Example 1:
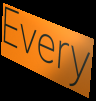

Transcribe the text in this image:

Every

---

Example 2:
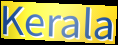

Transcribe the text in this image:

Kerala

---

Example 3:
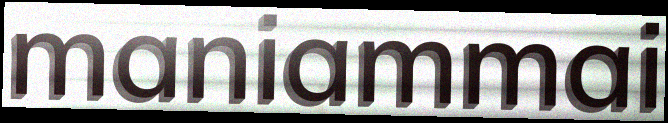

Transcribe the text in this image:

maniammai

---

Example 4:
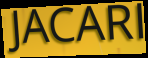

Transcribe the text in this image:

JACARI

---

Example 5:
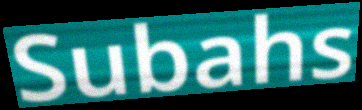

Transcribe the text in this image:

Subahs